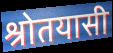
श्रोतयासी